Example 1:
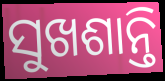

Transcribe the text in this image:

ସୁଖଶାନ୍ତି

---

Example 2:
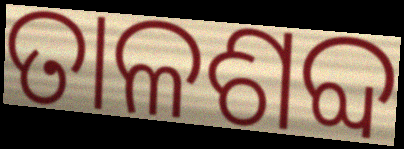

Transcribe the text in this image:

ତାଳଶବ୍ଦ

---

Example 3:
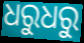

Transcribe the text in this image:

ଧରୁଧରୁ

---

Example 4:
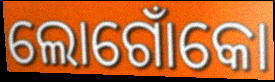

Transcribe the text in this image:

ଲୋଗୋଁକୋ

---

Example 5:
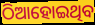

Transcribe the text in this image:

ଠିଆହୋଇଥିବ